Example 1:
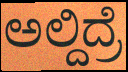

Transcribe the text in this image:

ಅಲ್ದಿದ್ರೆ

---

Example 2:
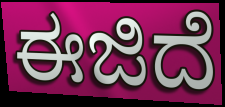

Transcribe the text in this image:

ಈಜಿದೆ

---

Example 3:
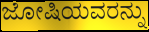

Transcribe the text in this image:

ಜೋಷಿಯವರನ್ನು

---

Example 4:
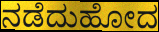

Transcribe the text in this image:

ನಡೆದುಹೋದ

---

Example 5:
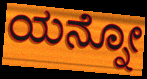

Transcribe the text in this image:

ಯನ್ನೋ